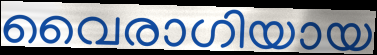
വൈരാഗിയായ